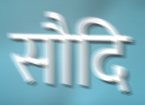
सौदि